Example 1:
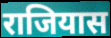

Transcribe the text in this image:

राजियास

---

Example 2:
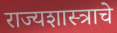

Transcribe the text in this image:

राज्यशास्त्राचे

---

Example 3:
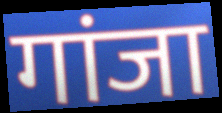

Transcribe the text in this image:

गांजा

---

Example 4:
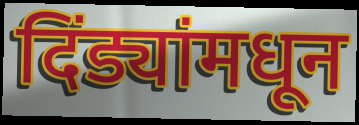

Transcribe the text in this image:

दिंड्यांमधून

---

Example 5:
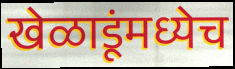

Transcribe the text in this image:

खेळाडूंमध्येच